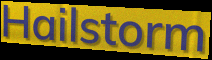
Hailstorm